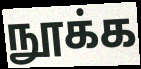
நூக்க